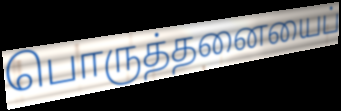
பொருத்தனையைப்